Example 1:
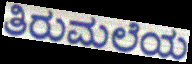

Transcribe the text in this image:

ತಿರುಮಲೆಯ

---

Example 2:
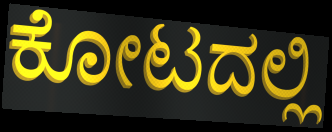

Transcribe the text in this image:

ಕೋಟದಲ್ಲಿ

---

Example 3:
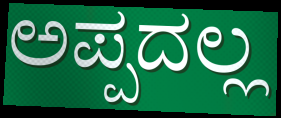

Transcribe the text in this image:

ಅಪ್ಪದಲ್ಲ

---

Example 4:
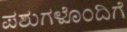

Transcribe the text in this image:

ಪಶುಗಳೊಂದಿಗೆ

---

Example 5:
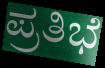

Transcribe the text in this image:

ಪ್ರತಿಭೆ